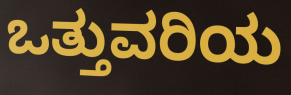
ಒತ್ತುವರಿಯ